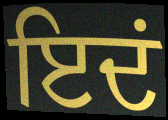
ਇਦਂ